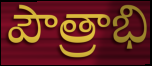
పౌత్రాభి